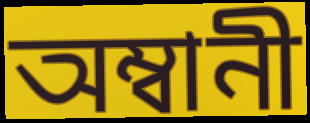
অম্বানী